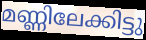
മണ്ണിലേക്കിട്ടു